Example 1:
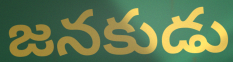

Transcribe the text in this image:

జనకుడు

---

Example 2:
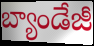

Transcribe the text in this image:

బ్యాండేజీ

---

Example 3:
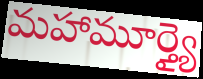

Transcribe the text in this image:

మహామూర్త్యై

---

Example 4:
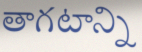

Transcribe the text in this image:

తాగటాన్ని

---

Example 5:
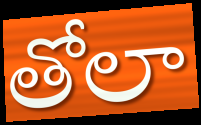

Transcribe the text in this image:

తోలా